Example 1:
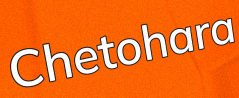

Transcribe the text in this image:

Chetohara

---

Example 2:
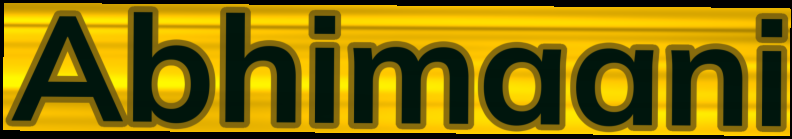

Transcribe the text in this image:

Abhimaani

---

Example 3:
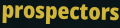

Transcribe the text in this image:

prospectors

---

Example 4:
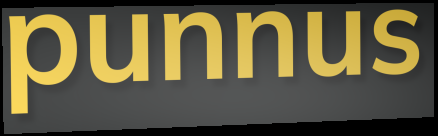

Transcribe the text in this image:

punnus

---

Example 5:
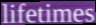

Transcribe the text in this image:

lifetimes